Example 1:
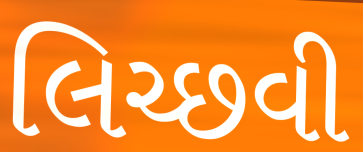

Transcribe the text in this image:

લિચ્છવી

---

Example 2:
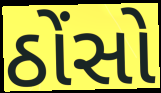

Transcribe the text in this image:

ઠોંસો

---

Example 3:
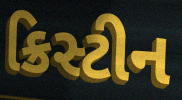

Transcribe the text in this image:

ક્રિસ્ટીન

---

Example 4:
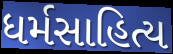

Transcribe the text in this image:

ધર્મસાહિત્ય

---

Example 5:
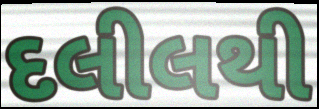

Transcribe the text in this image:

દલીલથી